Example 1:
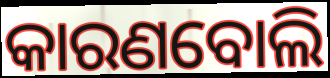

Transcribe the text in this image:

କାରଣବୋଲି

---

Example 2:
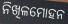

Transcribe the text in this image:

ନିଖିଳମୋହନ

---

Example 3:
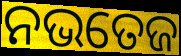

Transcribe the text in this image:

ନଭତେଜ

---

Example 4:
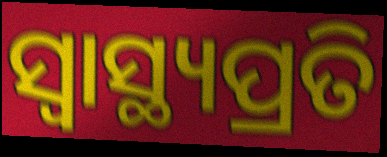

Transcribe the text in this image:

ସ୍ବାସ୍ଥ୍ୟପ୍ରତି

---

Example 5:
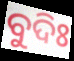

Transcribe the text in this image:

ବୁଦିଃ